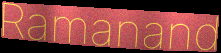
Ramanand